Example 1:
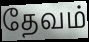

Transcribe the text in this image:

தேவம்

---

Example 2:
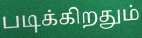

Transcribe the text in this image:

படிக்கிறதும்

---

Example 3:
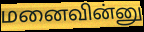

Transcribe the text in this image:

மனைவின்னு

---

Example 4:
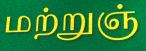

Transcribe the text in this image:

மற்றுஞ்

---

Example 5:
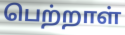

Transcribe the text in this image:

பெற்றாள்